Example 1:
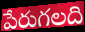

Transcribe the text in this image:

పేరుగలది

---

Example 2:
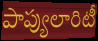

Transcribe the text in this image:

పాప్యులారిటీ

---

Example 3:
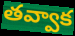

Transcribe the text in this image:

తవ్వాక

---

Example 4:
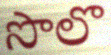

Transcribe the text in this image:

సొలొ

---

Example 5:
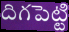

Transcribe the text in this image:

దిగపెట్టి